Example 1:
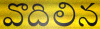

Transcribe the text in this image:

వొదిలిన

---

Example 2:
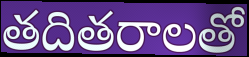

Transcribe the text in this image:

తదితరాలతో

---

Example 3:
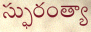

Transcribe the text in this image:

స్ఫురంత్యా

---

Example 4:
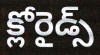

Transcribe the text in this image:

క్లోరైడ్స్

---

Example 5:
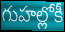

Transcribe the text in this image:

గుహల్లోకీ